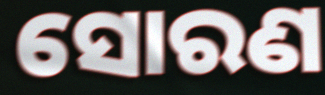
ସୋରଣ